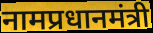
नामप्रधानमंत्री